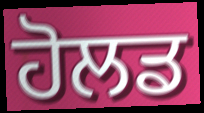
ਹੋਲਡ